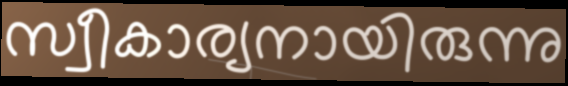
സ്വീകാര്യനായിരുന്നു